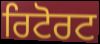
ਰਿਟੋਰਟ